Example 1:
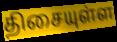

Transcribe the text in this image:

திசையுள்ள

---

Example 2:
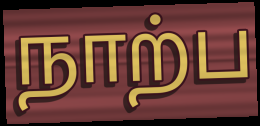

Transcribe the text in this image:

நாற்ப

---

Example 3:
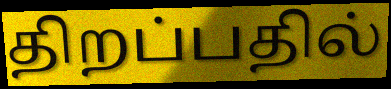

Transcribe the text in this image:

திறப்பதில்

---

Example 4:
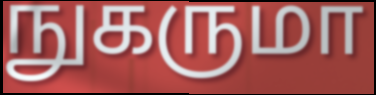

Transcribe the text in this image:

நுகருமா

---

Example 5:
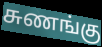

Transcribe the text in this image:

சுணங்கு